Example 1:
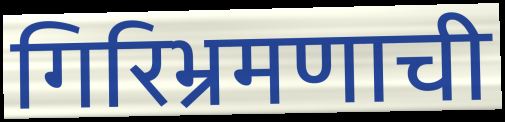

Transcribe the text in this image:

गिरिभ्रमणाची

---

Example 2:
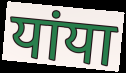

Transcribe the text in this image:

यांया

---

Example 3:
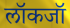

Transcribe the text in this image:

लॉकजॉ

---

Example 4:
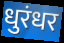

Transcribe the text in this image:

धुरंधर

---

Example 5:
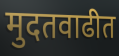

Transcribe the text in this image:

मुदतवाढीत